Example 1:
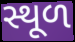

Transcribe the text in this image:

સ્થૂળ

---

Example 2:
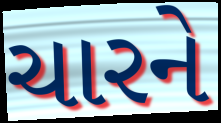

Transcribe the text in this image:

ચારને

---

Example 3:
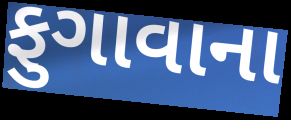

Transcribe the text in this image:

ફુગાવાના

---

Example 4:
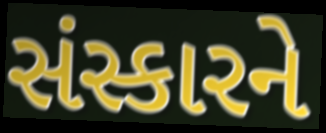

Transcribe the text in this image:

સંસ્કારને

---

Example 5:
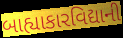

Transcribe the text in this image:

બાહ્યાકારવિદ્યાની